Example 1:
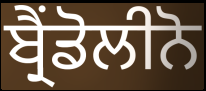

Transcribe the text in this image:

ਬ੍ਰੈਂਡੋਲੀਨੋ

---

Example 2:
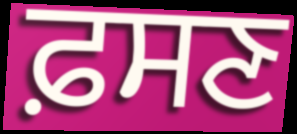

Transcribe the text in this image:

ਫ਼ਸਣ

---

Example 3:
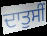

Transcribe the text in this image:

ਦਾਤੁਸੀਂ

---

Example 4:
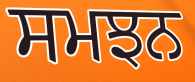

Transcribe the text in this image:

ਸਮਝਨ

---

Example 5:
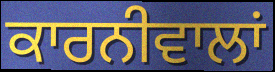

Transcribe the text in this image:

ਕਾਰਨੀਵਾਲਾਂ